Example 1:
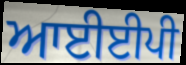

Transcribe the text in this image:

ਆਈਈਪੀ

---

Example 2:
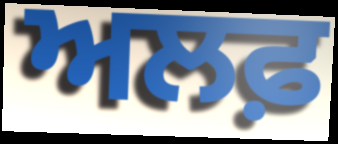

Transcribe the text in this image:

ਅਲਫ਼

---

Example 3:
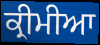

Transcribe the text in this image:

ਕ੍ਰੀਮੀਆ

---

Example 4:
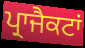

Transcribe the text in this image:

ਪ੍ਰਾਜੈਕਟਾਂ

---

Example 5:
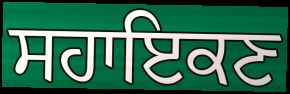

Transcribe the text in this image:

ਸਹਾਇਕਣ